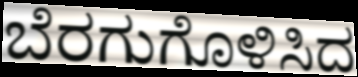
ಬೆರಗುಗೊಳಿಸಿದ